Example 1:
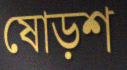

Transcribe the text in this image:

ষোড়শ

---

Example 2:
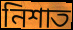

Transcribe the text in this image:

নিশাত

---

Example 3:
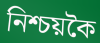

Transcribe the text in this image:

নিশ্চয়কৈ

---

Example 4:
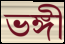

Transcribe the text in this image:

ভঙ্গী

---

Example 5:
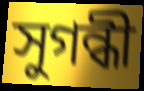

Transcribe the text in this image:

সুগন্ধী